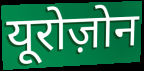
यूरोज़ोन